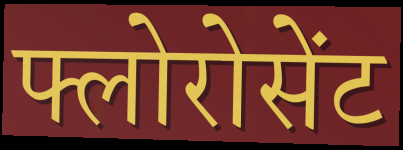
फ्लोरोसेंट